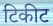
टिकीट